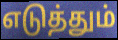
எடுத்தும்